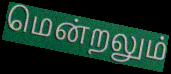
மென்றலும்